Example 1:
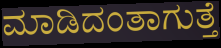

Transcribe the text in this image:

ಮಾಡಿದಂತಾಗುತ್ತೆ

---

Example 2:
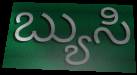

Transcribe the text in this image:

ಬ್ಯುಸಿ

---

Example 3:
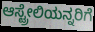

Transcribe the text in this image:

ಆಸ್ಟ್ರೇಲಿಯನ್ನರಿಗೆ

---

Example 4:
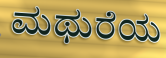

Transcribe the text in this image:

ಮಥುರೆಯ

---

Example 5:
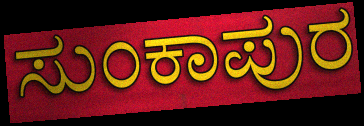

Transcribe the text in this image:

ಸುಂಕಾಪುರ